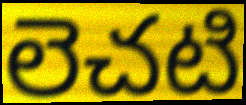
లెచటి